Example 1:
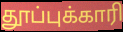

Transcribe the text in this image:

தூப்புக்காரி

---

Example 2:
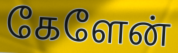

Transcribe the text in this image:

கேளேன்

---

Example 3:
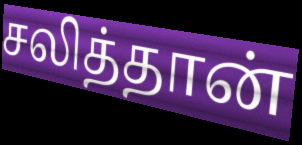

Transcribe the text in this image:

சலித்தான்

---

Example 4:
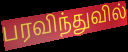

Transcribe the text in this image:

பரவிந்துவில்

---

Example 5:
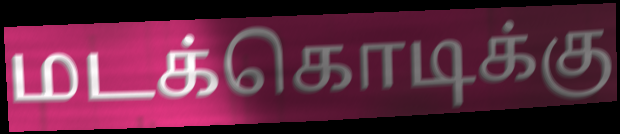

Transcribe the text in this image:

மடக்கொடிக்கு